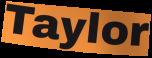
Taylor